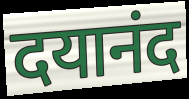
दयानंद